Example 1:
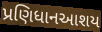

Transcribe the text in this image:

પ્રણિધાનઆશય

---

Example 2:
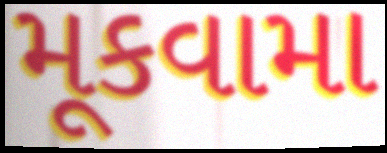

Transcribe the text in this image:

મૂકવામા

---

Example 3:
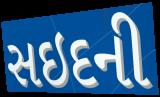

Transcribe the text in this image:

સઇદની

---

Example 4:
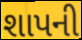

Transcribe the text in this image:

શાપની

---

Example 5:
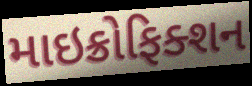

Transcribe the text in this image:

માઇક્રોફિક્શન